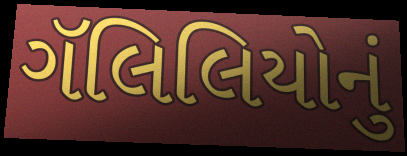
ગૅલિલિયોનું